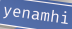
yenamhi